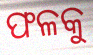
ଫଳକୁ